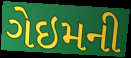
ગેઇમની